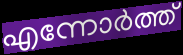
എന്നോർത്ത്